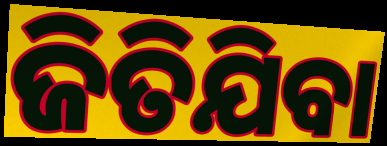
ଜିତିଯିବା